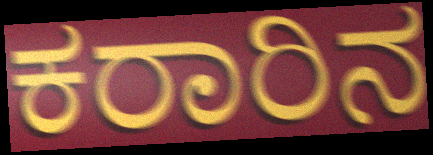
ಕರಾರಿನ